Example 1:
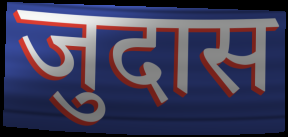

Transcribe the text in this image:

जुदास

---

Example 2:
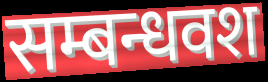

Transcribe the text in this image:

सम्बन्धवश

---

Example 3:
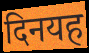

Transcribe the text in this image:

दिनयह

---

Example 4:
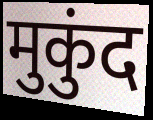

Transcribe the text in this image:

मुकुंद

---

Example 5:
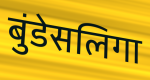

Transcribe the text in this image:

बुंडेसलिगा